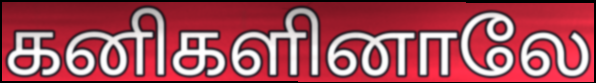
கனிகளினாலே